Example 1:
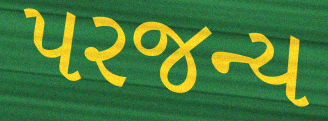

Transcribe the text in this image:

પરજન્ય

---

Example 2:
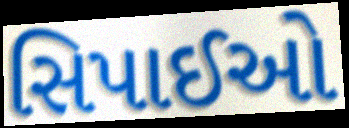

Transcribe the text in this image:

સિપાઈઓ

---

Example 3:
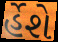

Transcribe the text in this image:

ર્હેશે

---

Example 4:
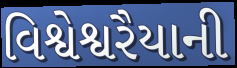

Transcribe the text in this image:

વિશ્વેશ્વરૈયાની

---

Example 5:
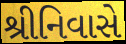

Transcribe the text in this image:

શ્રીનિવાસે